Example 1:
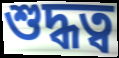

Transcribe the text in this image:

শুদ্ধত্ব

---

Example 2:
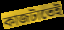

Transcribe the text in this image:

কাজটাতেই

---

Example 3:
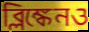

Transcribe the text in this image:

ব্লিঙ্কেনও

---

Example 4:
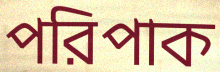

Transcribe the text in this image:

পরিপাক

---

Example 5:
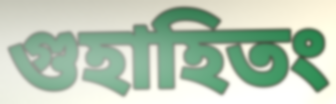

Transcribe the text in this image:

গুহাহিতং